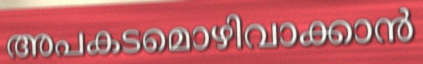
അപകടമൊഴിവാക്കാൻ